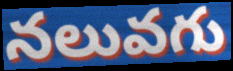
నలువగు